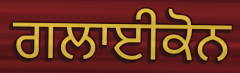
ਗਲਾਈਕੋਨ